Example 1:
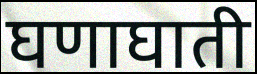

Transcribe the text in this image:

घणाघाती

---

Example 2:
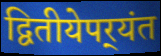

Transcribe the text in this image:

द्वितीयेपर्यंत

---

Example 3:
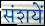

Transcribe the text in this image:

संशयें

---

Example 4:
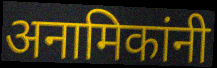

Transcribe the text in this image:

अनामिकांनी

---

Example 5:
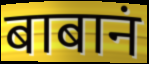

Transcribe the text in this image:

बाबानं